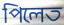
পিলেত